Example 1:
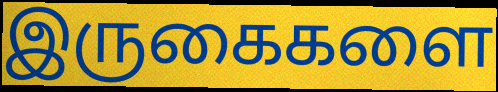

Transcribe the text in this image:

இருகைகளை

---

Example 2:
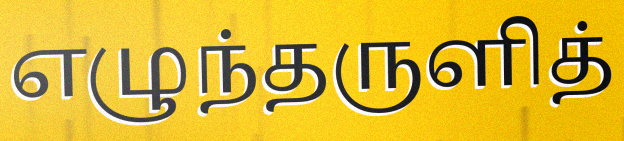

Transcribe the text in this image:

எழுந்தருளித்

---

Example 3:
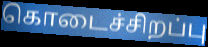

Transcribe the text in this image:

கொடைச்சிறப்பு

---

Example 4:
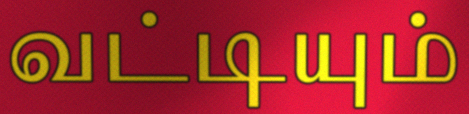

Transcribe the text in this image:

வட்டியும்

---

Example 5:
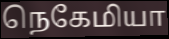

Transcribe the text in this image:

நெகேமியா